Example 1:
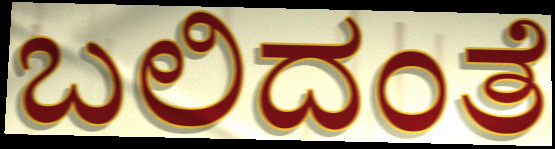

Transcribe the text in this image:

ಬಲಿದಂತೆ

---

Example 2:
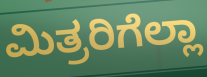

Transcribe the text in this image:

ಮಿತ್ರರಿಗೆಲ್ಲಾ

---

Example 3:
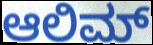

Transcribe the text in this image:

ಆಲಿಮ್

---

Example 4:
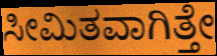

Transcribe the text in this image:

ಸೀಮಿತವಾಗಿತ್ತೇ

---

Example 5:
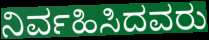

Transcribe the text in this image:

ನಿರ್ವಹಿಸಿದವರು